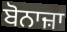
ਬੋਨਾਜ਼ਾ